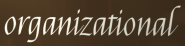
organizational